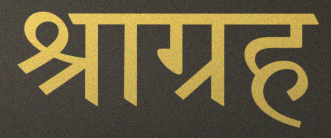
श्राग्रह